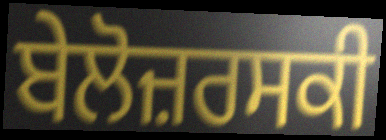
ਬੇਲੋਜ਼ਰਸਕੀ